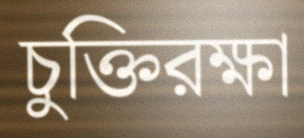
চুক্তিরক্ষা